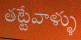
తట్టేవాళ్ళు